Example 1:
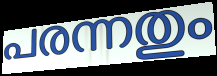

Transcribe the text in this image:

പരന്നതും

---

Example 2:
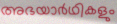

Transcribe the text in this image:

അഭയാർഥികളും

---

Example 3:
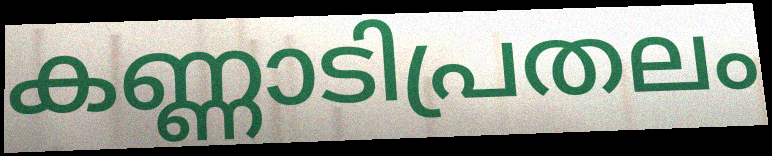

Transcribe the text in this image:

കണ്ണാടിപ്രതലം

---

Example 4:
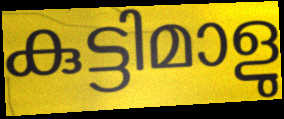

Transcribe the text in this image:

കുട്ടിമാളു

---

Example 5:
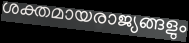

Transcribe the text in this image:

ശക്തമായരാജ്യങ്ങളും